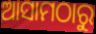
ଆସାମଠାରୁ